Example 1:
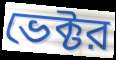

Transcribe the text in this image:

ভেক্টর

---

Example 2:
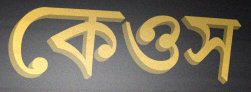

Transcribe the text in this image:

কেওস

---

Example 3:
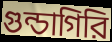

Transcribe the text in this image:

গুন্ডাগিরি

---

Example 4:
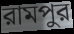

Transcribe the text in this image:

রামপুর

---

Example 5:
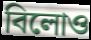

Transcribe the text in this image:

বিলোও